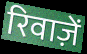
रिवाज़ें